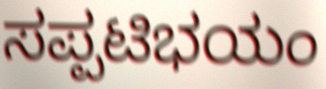
ಸಪ್ಪಟಿಭಯಂ